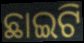
ଛାଇଟି